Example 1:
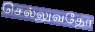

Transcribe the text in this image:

செல்லுவதோ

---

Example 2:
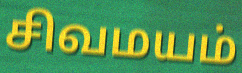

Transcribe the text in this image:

சிவமயம்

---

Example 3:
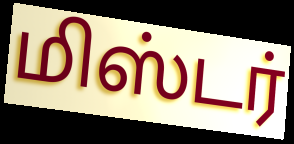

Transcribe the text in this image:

மிஸ்டர்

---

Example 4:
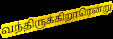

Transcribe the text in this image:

வந்திருக்கிறாரென்று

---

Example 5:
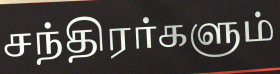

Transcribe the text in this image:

சந்திரர்களும்